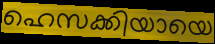
ഹെസക്കിയായെ